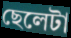
ছেলেটা